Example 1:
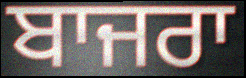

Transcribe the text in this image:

ਬਾਜਰਾ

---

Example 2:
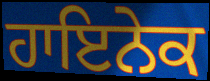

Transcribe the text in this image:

ਹਾਇਨੇਕ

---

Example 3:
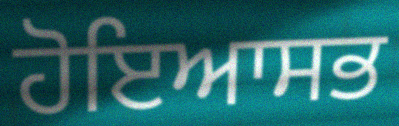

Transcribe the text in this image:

ਹੋਇਆਸਭ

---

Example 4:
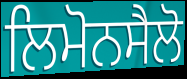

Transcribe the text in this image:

ਲਿਮੋਨਸੈਲੋ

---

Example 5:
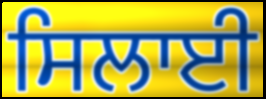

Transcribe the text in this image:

ਸਿਲਾਈ